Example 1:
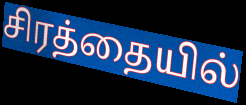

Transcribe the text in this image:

சிரத்தையில்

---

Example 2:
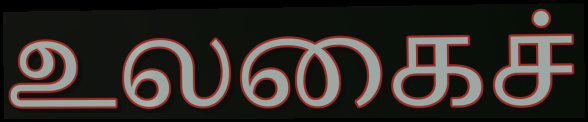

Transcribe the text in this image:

உலகைச்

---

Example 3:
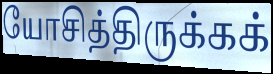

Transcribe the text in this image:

யோசித்திருக்கக்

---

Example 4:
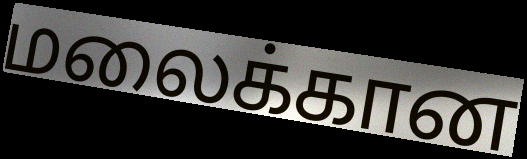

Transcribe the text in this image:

மலைக்கான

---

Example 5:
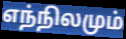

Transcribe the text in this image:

எந்நிலமும்